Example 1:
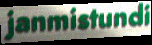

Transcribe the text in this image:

janmistundi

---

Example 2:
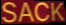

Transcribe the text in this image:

SACK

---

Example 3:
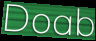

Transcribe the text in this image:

Doab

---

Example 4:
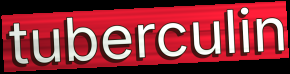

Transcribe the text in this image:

tuberculin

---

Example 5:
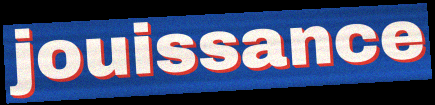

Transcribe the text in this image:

jouissance